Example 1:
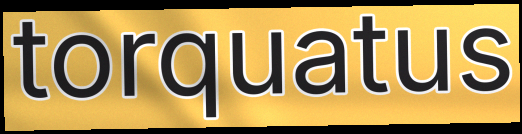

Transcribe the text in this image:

torquatus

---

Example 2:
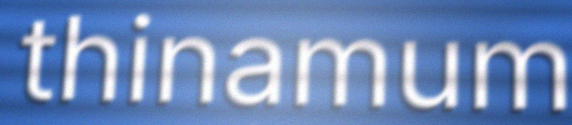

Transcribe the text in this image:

thinamum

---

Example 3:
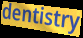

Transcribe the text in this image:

dentistry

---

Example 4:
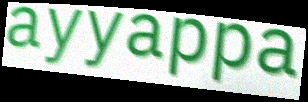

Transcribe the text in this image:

ayyappa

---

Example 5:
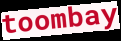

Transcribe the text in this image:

toombay